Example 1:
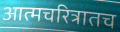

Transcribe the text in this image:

आत्मचरित्रातच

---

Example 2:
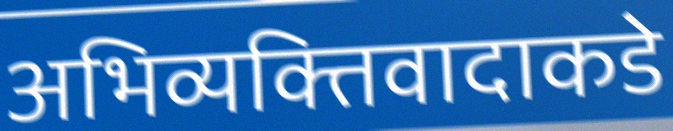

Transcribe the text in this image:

अभिव्यक्तिवादाकडे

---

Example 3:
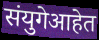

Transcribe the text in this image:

संयुगेआहेत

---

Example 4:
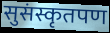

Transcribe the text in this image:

सुसंस्कृतपण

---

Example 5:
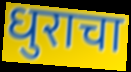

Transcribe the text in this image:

धुराचा